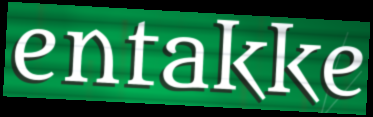
entakke